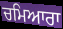
ਚਮਿਆਰਾ